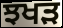
ਝਖੜ